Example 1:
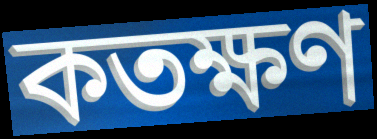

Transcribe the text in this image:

কতক্ষণ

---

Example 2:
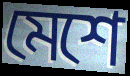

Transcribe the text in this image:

মেশে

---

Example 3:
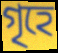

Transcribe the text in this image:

গৃহে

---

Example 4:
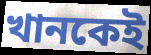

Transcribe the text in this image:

খানকেই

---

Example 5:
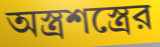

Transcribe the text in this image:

অস্ত্রশস্ত্রের